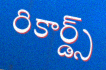
రికార్డ్స్